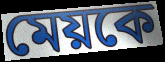
মেয়কে